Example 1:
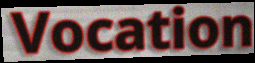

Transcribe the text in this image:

Vocation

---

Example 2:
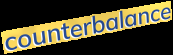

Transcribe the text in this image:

counterbalance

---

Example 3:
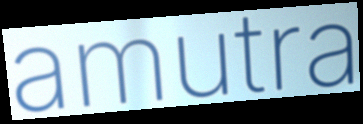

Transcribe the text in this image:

amutra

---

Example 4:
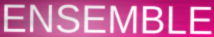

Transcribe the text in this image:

ENSEMBLE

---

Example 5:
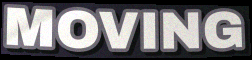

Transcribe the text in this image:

MOVING